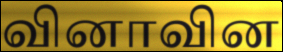
வினாவின